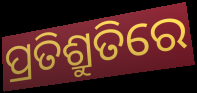
ପ୍ରତିଶ୍ରୁତିରେ